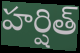
హర్షిత్